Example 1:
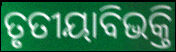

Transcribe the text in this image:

ତୃତୀୟାବିଭକ୍ତି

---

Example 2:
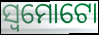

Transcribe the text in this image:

ସ୍ୱମୋଟୋ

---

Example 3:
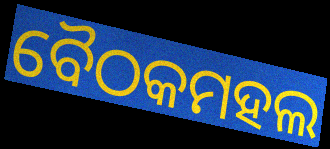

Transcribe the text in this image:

ବୈଠକମହଲ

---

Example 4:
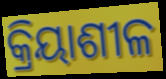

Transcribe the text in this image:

କ୍ରିୟାଶୀଳ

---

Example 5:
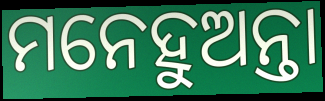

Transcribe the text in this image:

ମନେହୁଅନ୍ତା